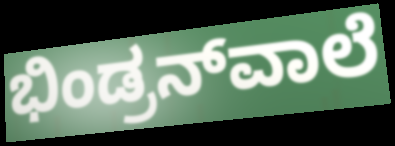
ಭಿಂಡ್ರನ್‌ವಾಲೆ